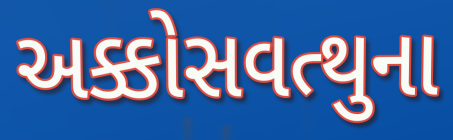
અક્કોસવત્થુના